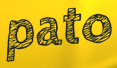
pato